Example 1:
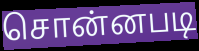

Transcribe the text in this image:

சொன்னபடி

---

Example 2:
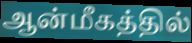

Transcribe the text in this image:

ஆன்மீகத்தில்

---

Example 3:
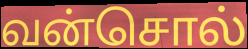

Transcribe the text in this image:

வன்சொல்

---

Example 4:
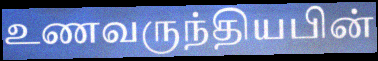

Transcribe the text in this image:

உணவருந்தியபின்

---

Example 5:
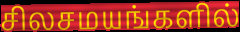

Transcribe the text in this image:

சிலசமயங்களில்